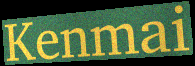
Kenmai